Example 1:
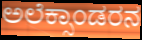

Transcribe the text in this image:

ಅಲೆಕ್ಸಾಂಡರನ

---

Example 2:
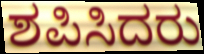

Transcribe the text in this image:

ಶಪಿಸಿದರು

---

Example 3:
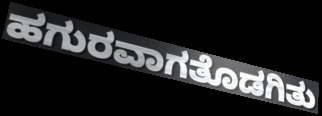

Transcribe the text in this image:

ಹಗುರವಾಗತೊಡಗಿತು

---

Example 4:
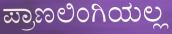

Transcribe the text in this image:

ಪ್ರಾಣಲಿಂಗಿಯಲ್ಲ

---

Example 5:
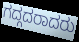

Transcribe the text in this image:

ಗದ್ಗದರಾದರು